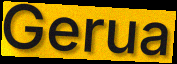
Gerua